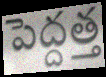
పెద్దత్త